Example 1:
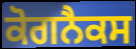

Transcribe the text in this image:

ਕੋਗਨੈਕਸ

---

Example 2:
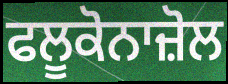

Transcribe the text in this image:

ਫਲੂਕੋਨਾਜ਼ੋਲ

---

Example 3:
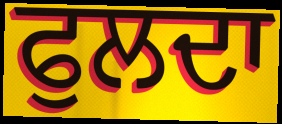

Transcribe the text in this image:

ਫੁਲਦਾ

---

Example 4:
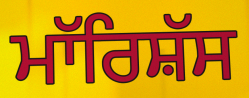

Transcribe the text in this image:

ਮਾੱਰਿਸ਼ੱਸ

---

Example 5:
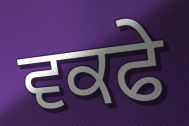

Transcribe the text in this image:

ਵਕਫੇ